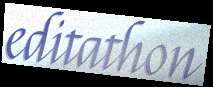
editathon